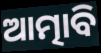
ଆତ୍ମାବି